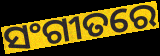
ସଂଗୀତରେ